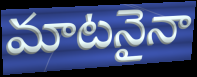
మాటనైనా